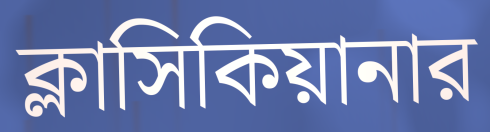
ক্লাসিকিয়ানার